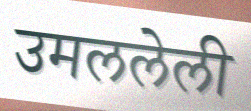
उमललेली